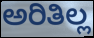
ಅರಿತಿಲ್ಲ